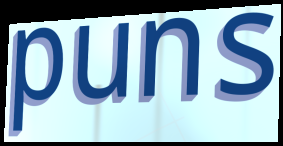
puns